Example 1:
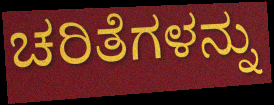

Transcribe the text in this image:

ಚರಿತೆಗಳನ್ನು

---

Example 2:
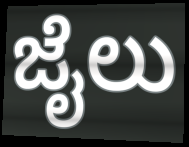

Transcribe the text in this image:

ಜೈಲು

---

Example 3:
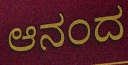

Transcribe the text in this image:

ಆನಂದ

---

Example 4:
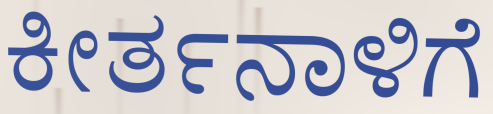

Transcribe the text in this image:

ಕೀರ್ತನಾಳಿಗೆ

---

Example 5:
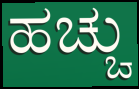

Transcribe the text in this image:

ಹಚ್ಚು